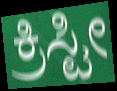
ಕ್ರಿಸ್ಟೀ